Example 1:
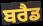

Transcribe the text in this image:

ਬਰੈਡ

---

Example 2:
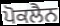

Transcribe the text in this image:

ਪੋਕਲੈਨ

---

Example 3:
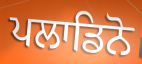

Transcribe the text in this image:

ਪਲਾਡਿਨੋ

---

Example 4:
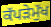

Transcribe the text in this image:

ਕੱਪੜੇਮੁੱਖ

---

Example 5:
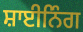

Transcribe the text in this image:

ਸ਼ਾਈਨਿੰਗ